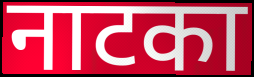
नाटका